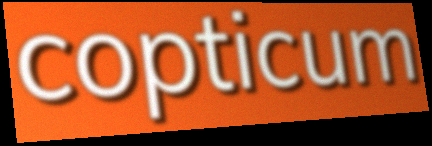
copticum